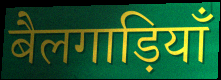
बैलगाड़ियाँ